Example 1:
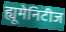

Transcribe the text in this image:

ह्यूमेनिटीज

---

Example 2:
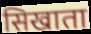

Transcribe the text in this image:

सिखाता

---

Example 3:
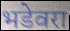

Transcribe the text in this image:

भडेवरा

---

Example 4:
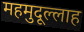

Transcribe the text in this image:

महमुदूल्लाह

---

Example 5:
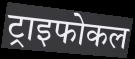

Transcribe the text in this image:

ट्राइफोकल